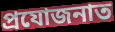
প্ৰযোজনাত